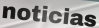
noticias